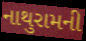
નાથુરામની